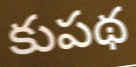
కుపథ